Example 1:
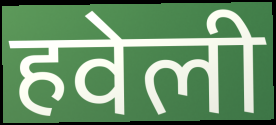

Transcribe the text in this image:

हवेली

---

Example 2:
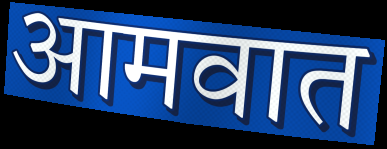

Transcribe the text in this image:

आमवात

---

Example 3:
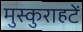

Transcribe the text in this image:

मुस्कुराहटें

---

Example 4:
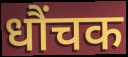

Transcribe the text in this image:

धौंचक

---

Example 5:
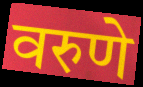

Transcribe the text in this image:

वरुणे